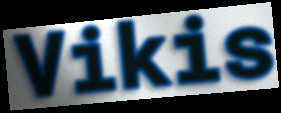
Vikis